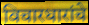
विचारधारांचे